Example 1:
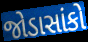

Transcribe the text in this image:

જોડાસાંકો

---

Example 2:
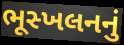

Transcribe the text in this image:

ભૂસ્ખલનનું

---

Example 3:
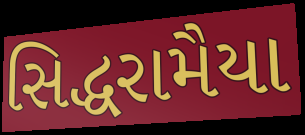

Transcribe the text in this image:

સિદ્ધરામૈયા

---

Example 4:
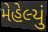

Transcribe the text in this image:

મેહેલ્યું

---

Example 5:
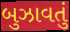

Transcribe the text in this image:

બુઝાવતું